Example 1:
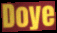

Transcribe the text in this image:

Doye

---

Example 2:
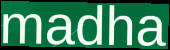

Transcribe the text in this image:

madha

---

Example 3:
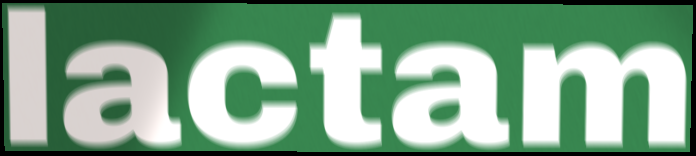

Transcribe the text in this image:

lactam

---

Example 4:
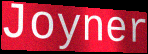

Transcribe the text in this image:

Joyner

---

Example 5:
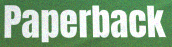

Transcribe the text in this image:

Paperback